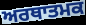
ਅਰਥਾਤਮਕ